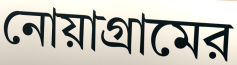
নোয়াগ্রামের